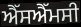
ਐੱਸਐੱਮਸੀ